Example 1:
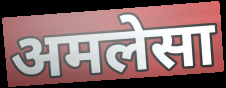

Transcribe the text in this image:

अमलेसा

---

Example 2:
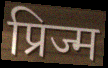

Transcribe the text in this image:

प्रिज्म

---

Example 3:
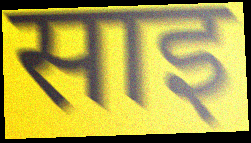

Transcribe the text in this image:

साइ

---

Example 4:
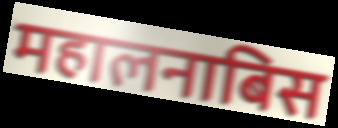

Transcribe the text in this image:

महालनाबिस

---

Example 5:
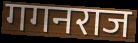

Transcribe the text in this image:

गगनराज